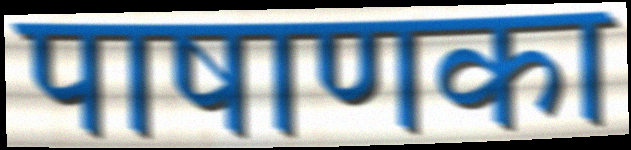
पाषाणका